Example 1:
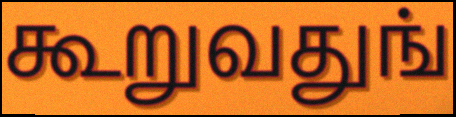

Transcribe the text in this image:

கூறுவதுங்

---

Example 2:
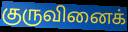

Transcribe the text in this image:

குருவினைக்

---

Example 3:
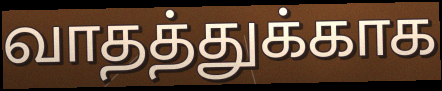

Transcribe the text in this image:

வாதத்துக்காக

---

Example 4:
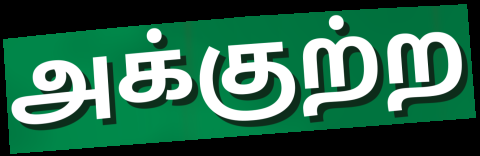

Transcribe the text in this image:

அக்குற்ற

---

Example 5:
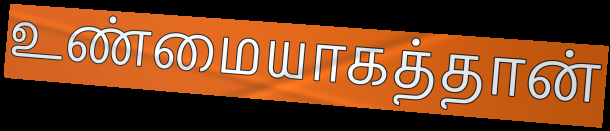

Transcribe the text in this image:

உண்மையாகத்தான்